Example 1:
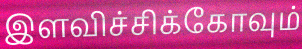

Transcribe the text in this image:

இளவிச்சிக்கோவும்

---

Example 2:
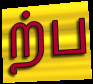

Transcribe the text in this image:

ற்ப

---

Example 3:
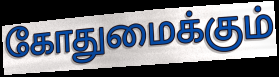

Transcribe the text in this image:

கோதுமைக்கும்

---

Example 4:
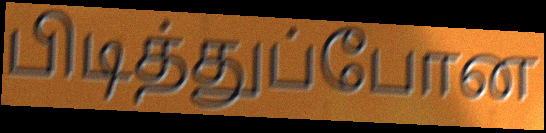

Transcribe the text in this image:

பிடித்துப்போன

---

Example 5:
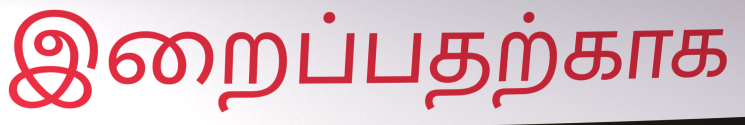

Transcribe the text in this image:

இறைப்பதற்காக